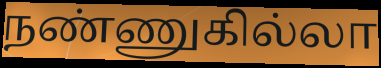
நண்ணுகில்லா